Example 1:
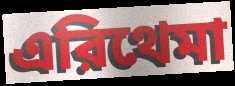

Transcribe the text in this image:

এরিথেমা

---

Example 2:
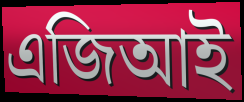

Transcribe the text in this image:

এজিআই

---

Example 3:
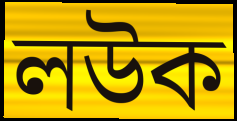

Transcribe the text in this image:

লউক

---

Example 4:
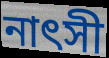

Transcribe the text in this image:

নাৎসী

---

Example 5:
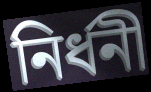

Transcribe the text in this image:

নির্ধনী